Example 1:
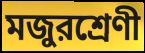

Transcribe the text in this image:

মজুরশ্রেণী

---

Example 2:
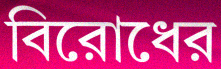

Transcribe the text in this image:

বিরোধের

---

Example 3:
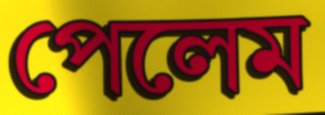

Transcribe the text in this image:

পেলেম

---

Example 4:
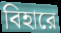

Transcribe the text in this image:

বিহারে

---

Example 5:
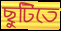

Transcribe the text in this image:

ছুটিতে